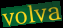
volva